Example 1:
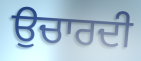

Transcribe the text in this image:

ਉਚਾਰਦੀ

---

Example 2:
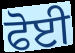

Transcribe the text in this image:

ਫੋਈ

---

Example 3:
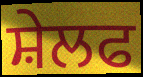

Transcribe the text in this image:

ਸ਼ੇਲਫ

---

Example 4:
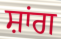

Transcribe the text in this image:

ਸ਼ਾਂਗ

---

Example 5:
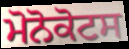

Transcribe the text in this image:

ਮੋਨੋਕੋਟਸ